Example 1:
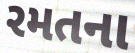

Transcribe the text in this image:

રમતના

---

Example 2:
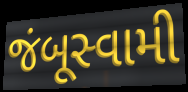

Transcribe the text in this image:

જંબૂસ્વામી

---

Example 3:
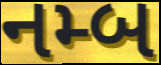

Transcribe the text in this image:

નમ્બ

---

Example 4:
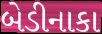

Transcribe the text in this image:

બેડીનાકા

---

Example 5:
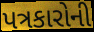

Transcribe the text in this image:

પત્રકારોની